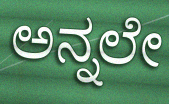
ಅನ್ನಲೇ